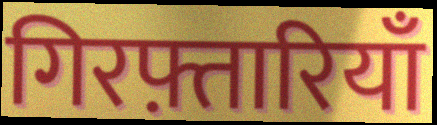
गिरफ़्तारियाँ